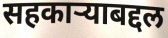
सहकाऱ्याबद्दल